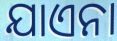
ଯାଏନା